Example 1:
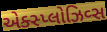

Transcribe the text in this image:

એક્સ્પ્લોઝિવ્સ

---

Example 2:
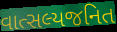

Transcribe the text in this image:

વાત્સલ્યજનિત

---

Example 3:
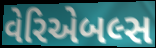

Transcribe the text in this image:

વેરિએબલ્સ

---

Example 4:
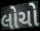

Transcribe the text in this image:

લોચો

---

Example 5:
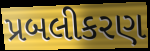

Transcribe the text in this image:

પ્રબલીકરણ